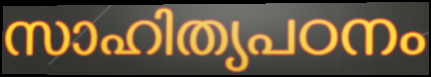
സാഹിത്യപഠനം